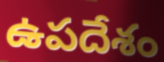
ఉపదేశం